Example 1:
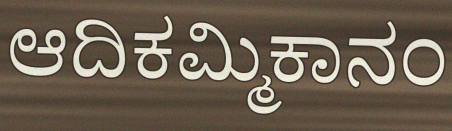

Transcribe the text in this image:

ಆದಿಕಮ್ಮಿಕಾನಂ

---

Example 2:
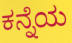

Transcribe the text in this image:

ಕನ್ನೆಯ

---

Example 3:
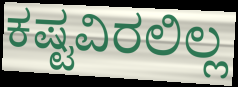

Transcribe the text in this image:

ಕಷ್ಟವಿರಲಿಲ್ಲ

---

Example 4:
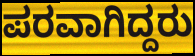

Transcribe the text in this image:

ಪರವಾಗಿದ್ದರು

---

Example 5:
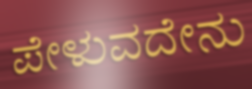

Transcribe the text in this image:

ಪೇಳುವದೇನು